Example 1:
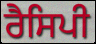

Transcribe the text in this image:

ਰੈਸਿਪੀ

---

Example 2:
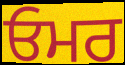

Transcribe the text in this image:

ਓਮਰ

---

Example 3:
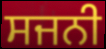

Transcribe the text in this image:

ਸਜਨੀ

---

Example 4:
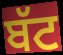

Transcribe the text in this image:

ਬੱਟ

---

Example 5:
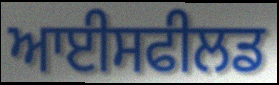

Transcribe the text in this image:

ਆਈਸਫੀਲਡ